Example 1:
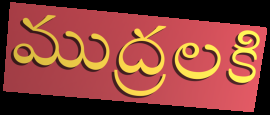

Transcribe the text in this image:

ముద్రలకి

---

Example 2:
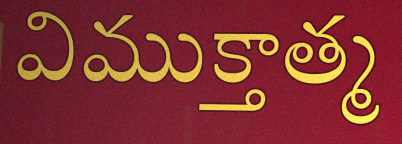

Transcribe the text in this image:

విముక్తాత్మ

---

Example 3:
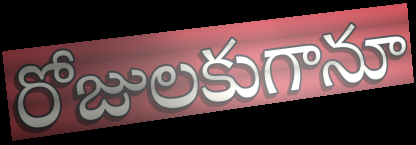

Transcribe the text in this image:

రోజులకుగానూ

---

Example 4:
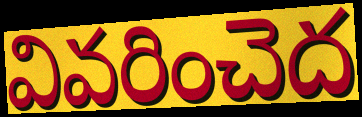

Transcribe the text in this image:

వివరించెద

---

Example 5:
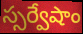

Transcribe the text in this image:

స్సర్వేషాం